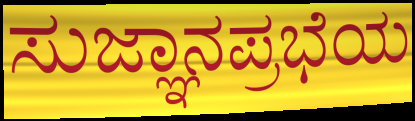
ಸುಜ್ಞಾನಪ್ರಭೆಯ